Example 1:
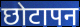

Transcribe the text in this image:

छोटापन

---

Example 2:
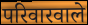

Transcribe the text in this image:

परिवारवाले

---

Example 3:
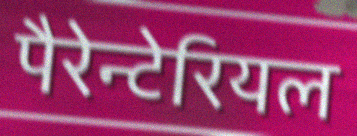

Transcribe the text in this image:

पैरेन्टेरियल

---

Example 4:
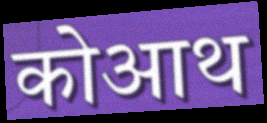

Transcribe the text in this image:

कोआथ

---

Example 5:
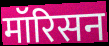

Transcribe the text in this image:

मॉरिसन